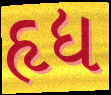
હૃદ્ય